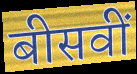
बीसवीं